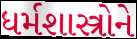
ધર્મશાસ્ત્રોને